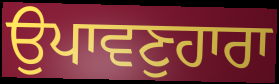
ਉਪਾਵਣੁਹਾਰਾ